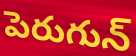
పెరుగున్